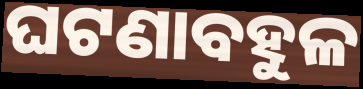
ଘଟଣାବହୁଳ